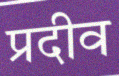
प्रदीव